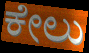
ಕೇಲು